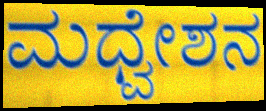
ಮಧ್ವೇಶನ